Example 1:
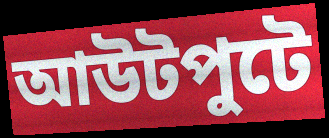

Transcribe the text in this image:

আউটপুটে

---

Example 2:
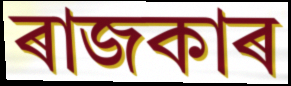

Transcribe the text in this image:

ৰাজকাৰ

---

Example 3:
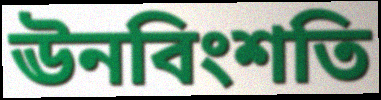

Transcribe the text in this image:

ঊনবিংশতি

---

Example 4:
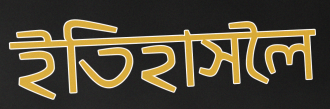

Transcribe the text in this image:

ইতিহাসলৈ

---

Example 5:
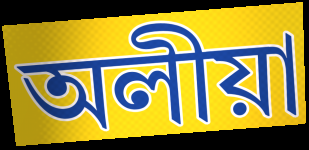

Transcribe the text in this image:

অলীয়া